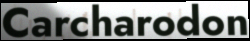
Carcharodon